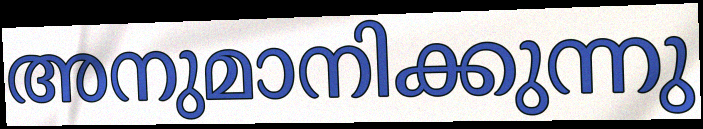
അനുമാനിക്കുന്നു